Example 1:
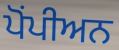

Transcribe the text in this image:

ਪੋਂਪੀਅਨ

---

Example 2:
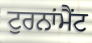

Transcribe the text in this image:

ਟੁਰਨਾਂਮੈਂਟ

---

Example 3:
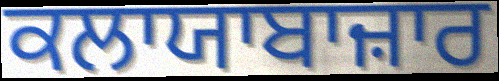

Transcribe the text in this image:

ਕਲਾਯਾਬਾਜ਼ਾਰ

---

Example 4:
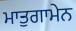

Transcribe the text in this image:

ਮਾਤੁਗਾਮੇਨ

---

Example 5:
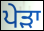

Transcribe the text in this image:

ਪੇੜਾ